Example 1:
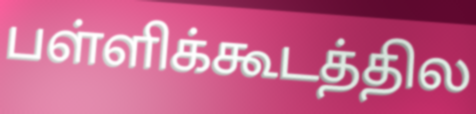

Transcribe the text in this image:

பள்ளிக்கூடத்தில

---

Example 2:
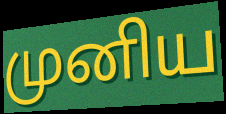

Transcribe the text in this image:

முனிய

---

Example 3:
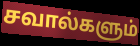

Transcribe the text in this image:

சவால்களும்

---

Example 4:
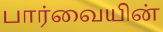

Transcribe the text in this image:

பார்வையின்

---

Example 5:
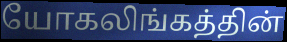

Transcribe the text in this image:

யோகலிங்கத்தின்